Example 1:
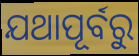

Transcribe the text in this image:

ଯଥାପୂର୍ବରୁ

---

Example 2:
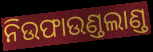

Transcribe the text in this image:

ନିଉଫାଉଣ୍ଡଲାଣ୍ଡ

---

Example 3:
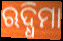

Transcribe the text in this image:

ଋଦ୍ଧିମା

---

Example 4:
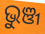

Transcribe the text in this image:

ଭୁଞ୍ଜ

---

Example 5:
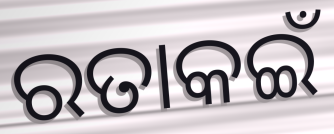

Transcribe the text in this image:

ରତାକଇଁ